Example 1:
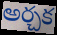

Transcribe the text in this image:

అర్చక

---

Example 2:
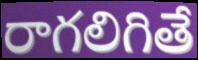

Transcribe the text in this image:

రాగలిగితే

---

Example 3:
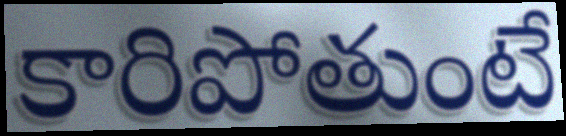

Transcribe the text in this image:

కారిపోతుంటే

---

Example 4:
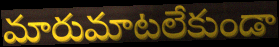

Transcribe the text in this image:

మారుమాటలేకుండా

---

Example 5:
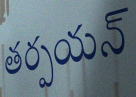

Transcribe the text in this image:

తర్పయన్